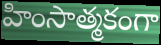
హింసాత్మకంగా